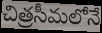
చిత్రసీమలోనే